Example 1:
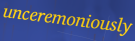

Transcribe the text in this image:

unceremoniously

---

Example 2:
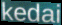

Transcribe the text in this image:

kedai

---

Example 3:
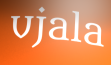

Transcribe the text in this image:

ujala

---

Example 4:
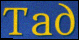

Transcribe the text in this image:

Tad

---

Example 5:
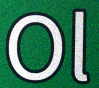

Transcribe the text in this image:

Ol